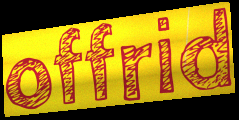
offrid